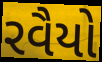
રવૈયો